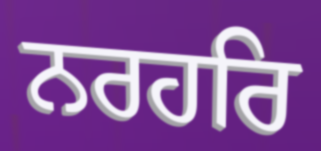
ਨਰਹਰਿ